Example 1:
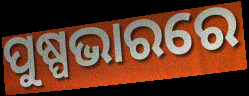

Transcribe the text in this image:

ପୁଷ୍ପଭାରରେ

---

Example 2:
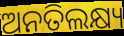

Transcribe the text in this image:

ଅନତିଲକ୍ଷ୍ୟ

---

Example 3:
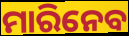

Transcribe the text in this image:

ମାରିନେବ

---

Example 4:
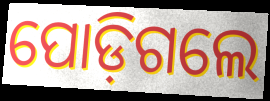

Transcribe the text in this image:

ପୋଡ଼ିଗଲେ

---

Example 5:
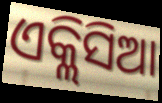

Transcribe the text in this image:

ଏକ୍ଲିସିଆ